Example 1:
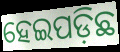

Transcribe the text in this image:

ହେଇପଡ଼ିଛ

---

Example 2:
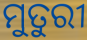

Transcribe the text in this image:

ମୁତୁରୀ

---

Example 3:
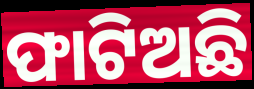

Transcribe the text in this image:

ଫାଟିଅଛି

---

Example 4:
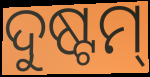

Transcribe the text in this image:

ଦୁଷ୍ଟମ୍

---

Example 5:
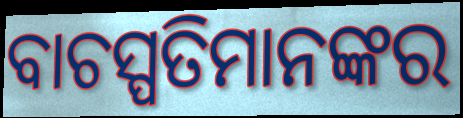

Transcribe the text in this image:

ବାଚସ୍ପତିମାନଙ୍କର